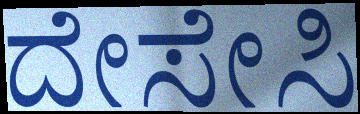
ದೇಸೇಸಿ